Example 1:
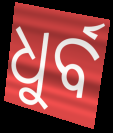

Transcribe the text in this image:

ଧୁର୍ବ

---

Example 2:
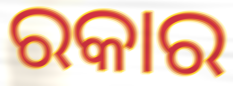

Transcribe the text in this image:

ରକାର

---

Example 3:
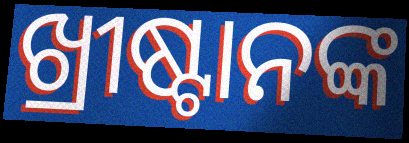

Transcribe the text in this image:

ଖ୍ରୀଷ୍ଟାନଙ୍କ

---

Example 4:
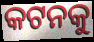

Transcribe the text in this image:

କଟନକୁ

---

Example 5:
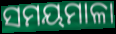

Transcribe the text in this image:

ସମୟମାଳା